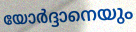
യോർദ്ദാനെയും